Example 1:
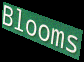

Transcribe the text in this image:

Blooms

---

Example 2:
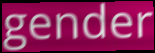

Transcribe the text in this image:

gender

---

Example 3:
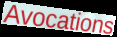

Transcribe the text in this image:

Avocations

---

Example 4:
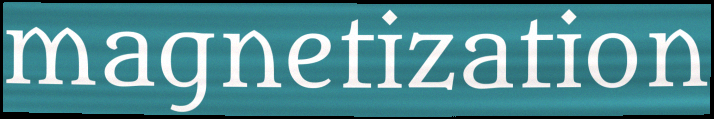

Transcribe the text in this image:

magnetization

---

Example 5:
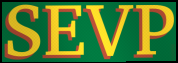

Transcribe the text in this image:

SEVP